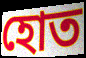
হোত